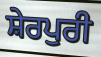
ਸ਼ੇਰਪੁਰੀ